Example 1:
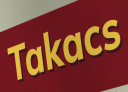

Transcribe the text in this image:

Takacs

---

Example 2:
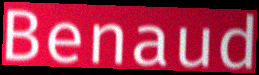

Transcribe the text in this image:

Benaud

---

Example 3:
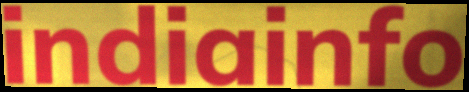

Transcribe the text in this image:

indiainfo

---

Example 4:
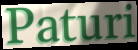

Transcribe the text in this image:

Paturi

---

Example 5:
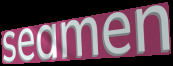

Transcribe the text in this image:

seamen